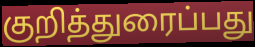
குறித்துரைப்பது